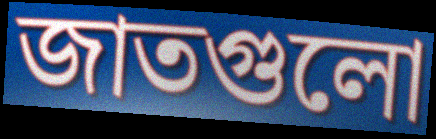
জাতগুলো